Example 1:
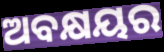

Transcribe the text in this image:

ଅବକ୍ଷୟର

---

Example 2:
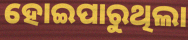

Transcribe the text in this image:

ହୋଇପାରୁଥିଲା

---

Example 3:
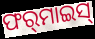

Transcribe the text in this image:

ଫର୍‌ମାଇସ୍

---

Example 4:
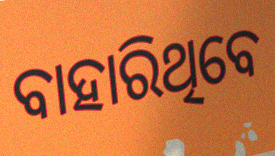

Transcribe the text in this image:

ବାହାରିଥିବେ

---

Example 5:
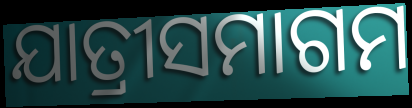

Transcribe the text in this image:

ଯାତ୍ରୀସମାଗମ